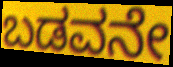
ಬಡವನೇ